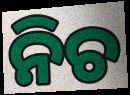
ନିଚ